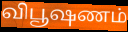
விபூஷணம்